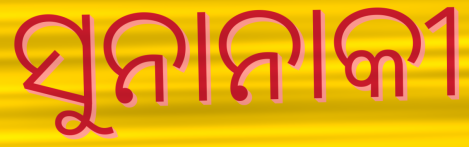
ସୁନାନାକୀ